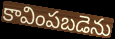
కావింపబడెను